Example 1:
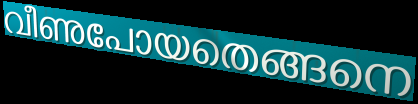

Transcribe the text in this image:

വീണുപോയതെങ്ങനെ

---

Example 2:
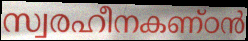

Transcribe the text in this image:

സ്വരഹീനകണ്ഠൻ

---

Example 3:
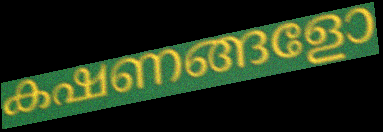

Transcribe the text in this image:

കഷണങ്ങളോ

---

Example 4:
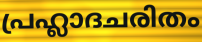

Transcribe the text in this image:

പ്രഹ്ലാദചരിതം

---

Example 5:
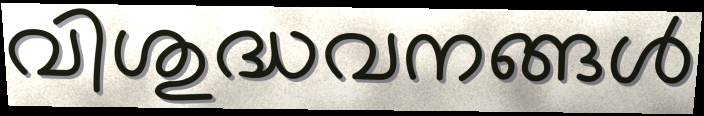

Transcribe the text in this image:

വിശുദ്ധവനങ്ങൾ